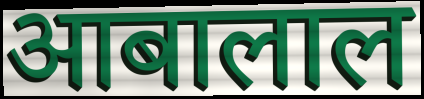
आबालाल